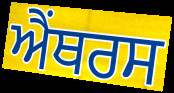
ਐਂਥਰਸ